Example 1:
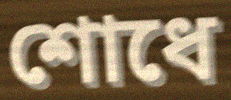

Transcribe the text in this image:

শোধে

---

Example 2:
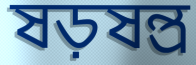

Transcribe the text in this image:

ষড়ষন্ত্র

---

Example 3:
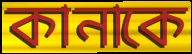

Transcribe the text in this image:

কানাকে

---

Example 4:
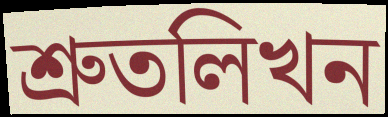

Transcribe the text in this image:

শ্রুতলিখন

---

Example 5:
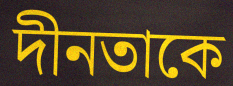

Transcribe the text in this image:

দীনতাকে